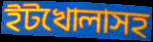
ইটখোলাসহ